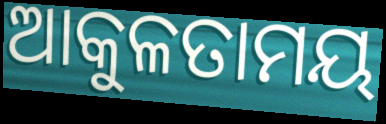
ଆକୁଳତାମୟ